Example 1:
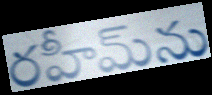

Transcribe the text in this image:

రహీమ్‌ను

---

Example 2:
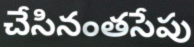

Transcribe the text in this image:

చేసినంతసేపు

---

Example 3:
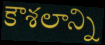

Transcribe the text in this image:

కౌశలాన్ని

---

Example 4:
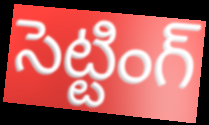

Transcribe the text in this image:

సెట్టింగ్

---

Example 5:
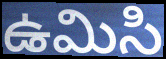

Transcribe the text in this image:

ఉమిసి